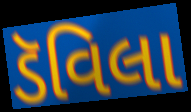
ડૅવિલા